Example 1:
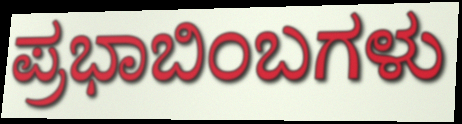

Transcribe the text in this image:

ಪ್ರಭಾಬಿಂಬಗಳು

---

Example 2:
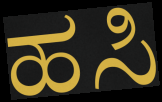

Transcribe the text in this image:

ಹಸಿ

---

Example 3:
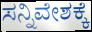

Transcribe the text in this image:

ಸನ್ನಿವೇಶಕ್ಕೆ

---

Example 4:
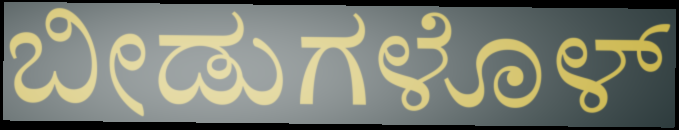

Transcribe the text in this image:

ಬೀಡುಗಳೊಳ್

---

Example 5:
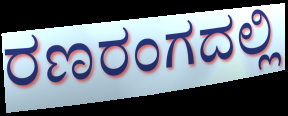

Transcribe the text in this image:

ರಣರಂಗದಲ್ಲಿ